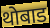
थोबाड